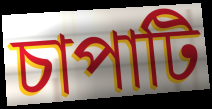
চাপাটি